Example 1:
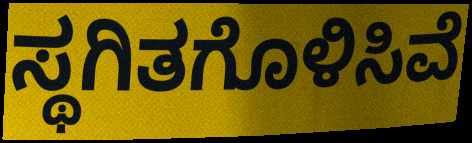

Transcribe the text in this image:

ಸ್ಥಗಿತಗೊಳಿಸಿವೆ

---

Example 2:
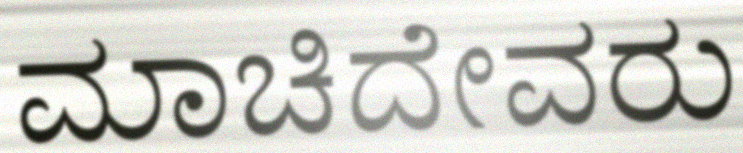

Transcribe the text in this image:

ಮಾಚಿದೇವರು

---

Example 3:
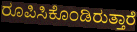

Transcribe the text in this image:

ರೂಪಿಸಿಕೊಂಡಿರುತ್ತಾರೆ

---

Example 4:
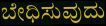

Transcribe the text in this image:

ಬೇಧಿಸುವುದು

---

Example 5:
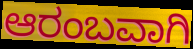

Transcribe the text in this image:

ಆರಂಬವಾಗಿ